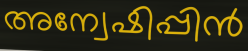
അന്വേഷിപ്പിൻ